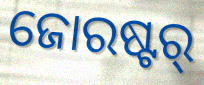
ଜୋରଷ୍ଟର୍